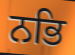
ਨਭਿ